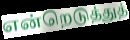
என்றெடுத்துத்